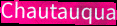
Chautauqua